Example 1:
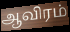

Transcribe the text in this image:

ஆவிரம்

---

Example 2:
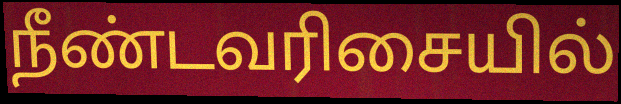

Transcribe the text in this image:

நீண்டவரிசையில்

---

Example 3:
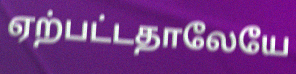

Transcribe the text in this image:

ஏற்பட்டதாலேயே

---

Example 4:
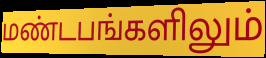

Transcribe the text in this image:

மண்டபங்களிலும்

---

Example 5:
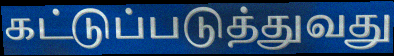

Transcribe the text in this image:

கட்டுப்படுத்துவது